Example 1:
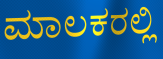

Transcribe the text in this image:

ಮಾಲಕರಲ್ಲಿ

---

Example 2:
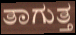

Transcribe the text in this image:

ತಾಗುತ್ತ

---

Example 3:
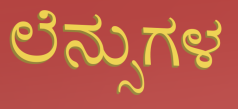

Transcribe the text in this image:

ಲೆನ್ಸುಗಳ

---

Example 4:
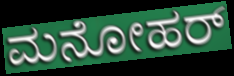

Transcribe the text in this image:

ಮನೋಹರ್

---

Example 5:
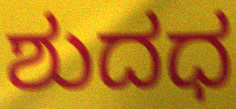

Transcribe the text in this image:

ಶುದಧ